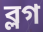
ব্লগ